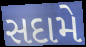
સદામે